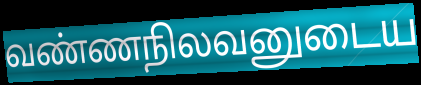
வண்ணநிலவனுடைய